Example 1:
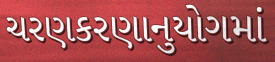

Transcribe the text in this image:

ચરણકરણાનુયોગમાં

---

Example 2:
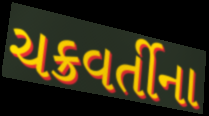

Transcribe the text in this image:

ચક્રવર્તીના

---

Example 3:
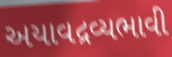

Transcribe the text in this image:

અયાવદ્રવ્યભાવી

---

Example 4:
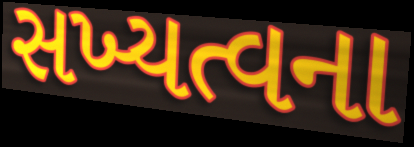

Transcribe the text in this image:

સખ્યત્વના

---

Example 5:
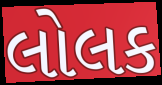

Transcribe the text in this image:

લોલક